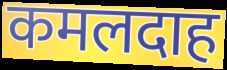
कमलदाह